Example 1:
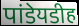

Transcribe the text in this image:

पांडेयडीह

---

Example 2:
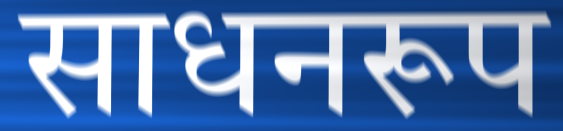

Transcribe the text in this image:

साधनरूप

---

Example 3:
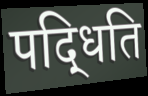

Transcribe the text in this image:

पद्धिति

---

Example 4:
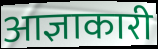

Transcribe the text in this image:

आज्ञाकारी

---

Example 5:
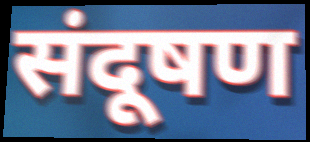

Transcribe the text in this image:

संदूषण